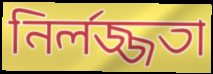
নির্লজ্জতা